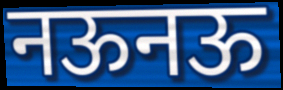
नऊनऊ